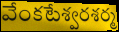
వేంకటేశ్వరశర్మ